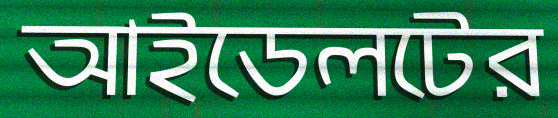
আইডেলটের